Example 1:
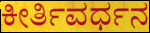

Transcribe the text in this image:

ಕೀರ್ತಿವರ್ಧನ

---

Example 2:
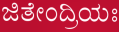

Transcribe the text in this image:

ಜಿತೇಂದ್ರಿಯಃ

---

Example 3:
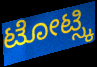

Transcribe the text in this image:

ಟೋಟ್ಸ್ಕಿ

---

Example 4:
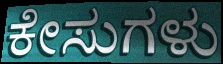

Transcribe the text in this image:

ಕೇಸುಗಳು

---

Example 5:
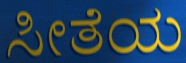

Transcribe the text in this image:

ಸೀತೆಯ